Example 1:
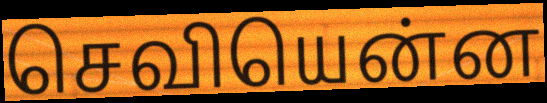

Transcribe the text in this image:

செவியென்ன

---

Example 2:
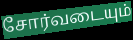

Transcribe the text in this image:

சோர்வடையும்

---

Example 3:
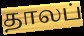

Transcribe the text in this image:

தாலப்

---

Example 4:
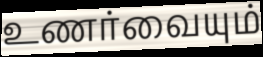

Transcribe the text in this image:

உணர்வையும்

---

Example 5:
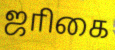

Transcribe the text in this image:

ஜரிகை